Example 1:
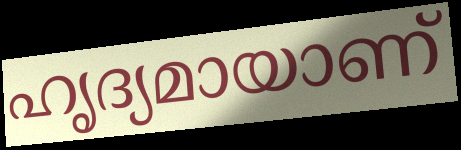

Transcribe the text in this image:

ഹൃദ്യമായാണ്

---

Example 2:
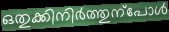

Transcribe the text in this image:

ഒതുക്കിനിർത്തുന്പോൾ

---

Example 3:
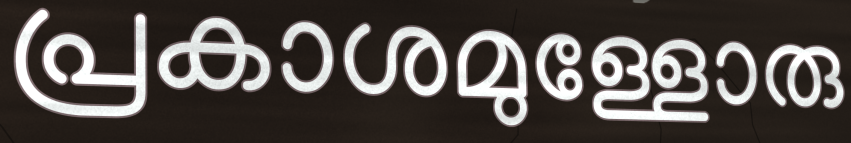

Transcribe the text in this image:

പ്രകാശമുള്ളോരു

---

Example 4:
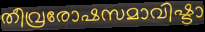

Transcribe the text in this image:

തീവ്രരോഷസമാവിഷ്ടാ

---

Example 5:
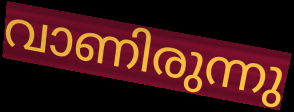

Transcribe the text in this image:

വാണിരുന്നു